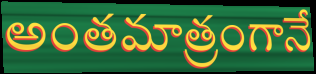
అంతమాత్రంగానే